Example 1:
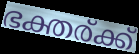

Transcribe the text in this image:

ഭക്തര്ക്ക്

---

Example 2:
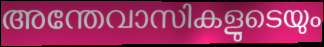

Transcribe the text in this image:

അന്തേവാസികളുടെയും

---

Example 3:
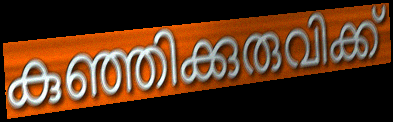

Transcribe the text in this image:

കുഞ്ഞിക്കുരുവിക്ക്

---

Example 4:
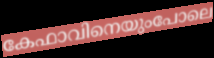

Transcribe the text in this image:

കേഫാവിനെയുംപോലെ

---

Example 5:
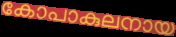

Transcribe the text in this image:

കോപാകുലനായ